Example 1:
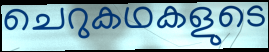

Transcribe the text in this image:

ചെറുകഥകളുടെ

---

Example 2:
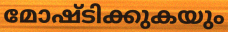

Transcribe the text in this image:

മോഷ്ടിക്കുകയും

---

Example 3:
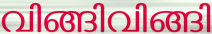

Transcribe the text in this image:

വിങ്ങിവിങ്ങി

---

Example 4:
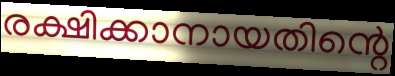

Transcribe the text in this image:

രക്ഷിക്കാനായതിന്റെ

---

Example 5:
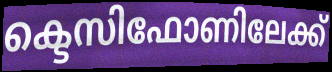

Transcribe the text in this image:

ക്ടെസിഫോണിലേക്ക്